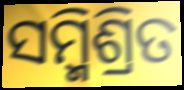
ସମ୍ମିଶ୍ରିତ